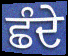
ਛੰਦੇ